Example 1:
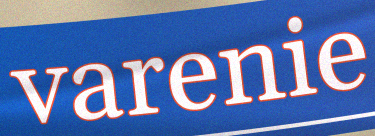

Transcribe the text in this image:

varenie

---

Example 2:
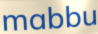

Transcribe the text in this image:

mabbu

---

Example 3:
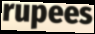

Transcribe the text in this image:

rupees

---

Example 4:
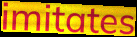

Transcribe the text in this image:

imitates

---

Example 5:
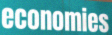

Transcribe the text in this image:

economies